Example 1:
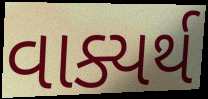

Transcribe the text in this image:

વાક્યર્થ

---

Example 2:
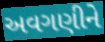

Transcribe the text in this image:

અવગણીને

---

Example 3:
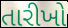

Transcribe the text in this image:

તારીખો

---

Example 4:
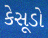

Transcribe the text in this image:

કેસૂડો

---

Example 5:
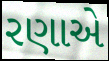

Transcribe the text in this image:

રણાએ